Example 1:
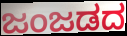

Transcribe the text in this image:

ಜಂಜಡದ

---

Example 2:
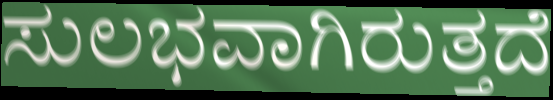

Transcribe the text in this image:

ಸುಲಭವಾಗಿರುತ್ತದೆ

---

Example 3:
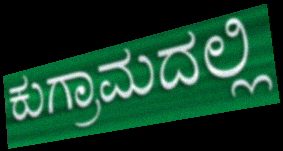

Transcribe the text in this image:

ಕುಗ್ರಾಮದಲ್ಲಿ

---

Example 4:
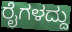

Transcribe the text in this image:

ರೈಗಳದ್ದು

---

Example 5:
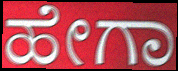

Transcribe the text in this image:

ಹೇಗಾ